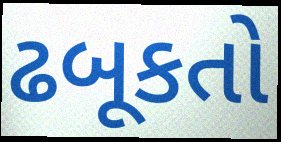
ઢબૂકતો